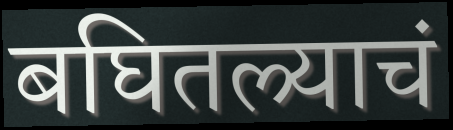
बघितल्याचं